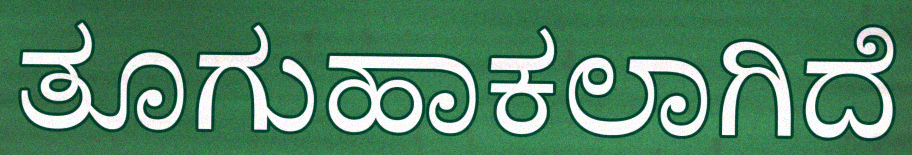
ತೂಗುಹಾಕಲಾಗಿದೆ